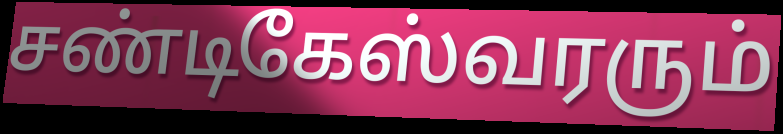
சண்டிகேஸ்வரரும்